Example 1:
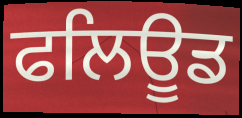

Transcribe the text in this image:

ਫਲਿਊਡ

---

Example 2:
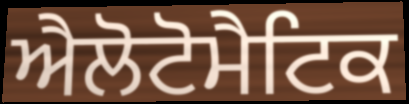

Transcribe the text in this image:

ਐਲੋਟੋਮੈਟਿਕ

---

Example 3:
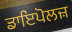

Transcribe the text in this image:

ਡਾਇਪੋਲਜ਼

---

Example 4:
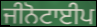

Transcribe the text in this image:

ਜੀਨੋਟਾਈਪ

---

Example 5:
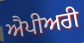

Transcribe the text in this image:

ਐਪੀਅਰੀ